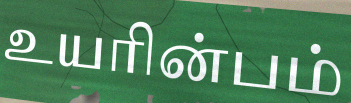
உயரின்பம்